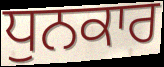
ਧੁਨਕਾਰ